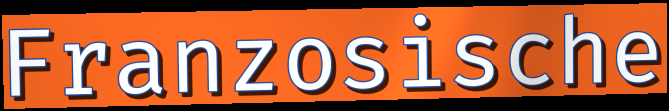
Franzosische